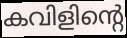
കവിളിന്റെ